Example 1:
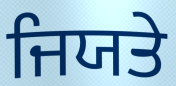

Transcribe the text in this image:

ਜਿਯਤੇ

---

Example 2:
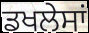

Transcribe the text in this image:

ਡਖਲੇਸਾਂ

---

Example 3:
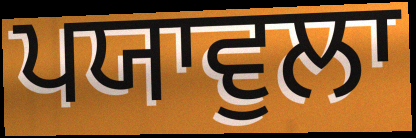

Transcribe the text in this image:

ਪਯਾਵੁਲਾ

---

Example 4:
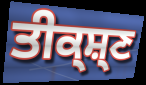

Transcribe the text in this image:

ਤੀਕ੍ਸ਼੍ਣ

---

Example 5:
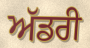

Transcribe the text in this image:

ਅੱਡਰੀ